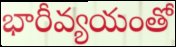
భారీవ్యయంతో